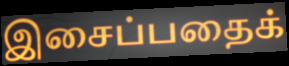
இசைப்பதைக்